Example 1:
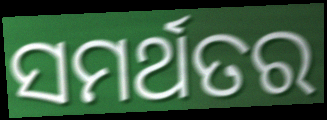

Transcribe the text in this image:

ସମର୍ଥତର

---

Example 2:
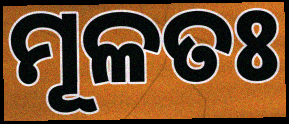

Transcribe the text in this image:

ମୂଳତଃ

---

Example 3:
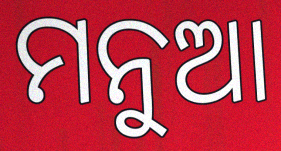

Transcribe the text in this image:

ମନୁଆ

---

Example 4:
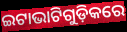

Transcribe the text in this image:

ଇଟାଭାଟିଗୁଡ଼ିକରେ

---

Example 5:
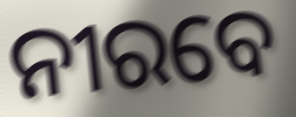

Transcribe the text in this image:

ନୀରବେ